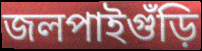
জলপাইগুঁড়ি